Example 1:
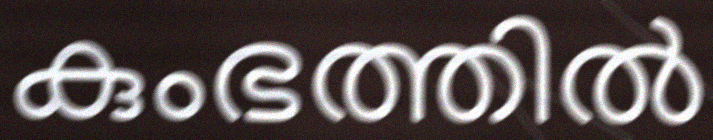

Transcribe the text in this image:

കുംഭത്തിൽ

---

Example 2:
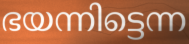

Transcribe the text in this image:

ഭയന്നിട്ടെന്ന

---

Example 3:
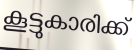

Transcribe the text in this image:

കൂട്ടുകാരിക്ക്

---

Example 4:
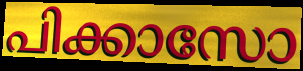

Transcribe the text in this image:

പിക്കാസോ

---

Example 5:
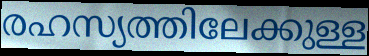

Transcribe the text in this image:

രഹസ്യത്തിലേക്കുള്ള